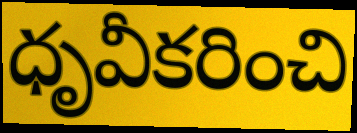
ధృవీకరించి